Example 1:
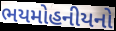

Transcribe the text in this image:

ભયમોહનીયનો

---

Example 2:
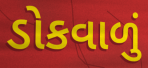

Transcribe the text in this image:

ડોકવાળું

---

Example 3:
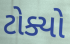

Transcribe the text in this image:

ટોક્યો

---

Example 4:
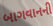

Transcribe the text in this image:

બાગવાનની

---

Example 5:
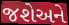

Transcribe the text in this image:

જશેઅને